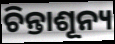
ଚିନ୍ତାଶୂନ୍ୟ